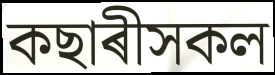
কছাৰীসকল